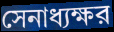
সেনাধ্যক্ষর